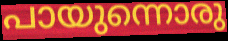
പായുന്നൊരു